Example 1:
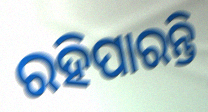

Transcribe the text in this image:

ରହିପାରନ୍ତି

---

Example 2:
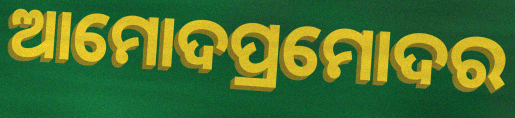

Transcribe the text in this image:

ଆମୋଦପ୍ରମୋଦର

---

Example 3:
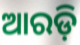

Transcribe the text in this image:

ଆରଡ଼ି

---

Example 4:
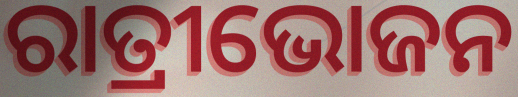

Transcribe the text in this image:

ରାତ୍ରୀଭୋଜନ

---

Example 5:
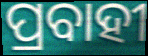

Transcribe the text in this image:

ପ୍ରବାହୀ